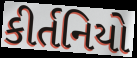
કીર્તનિયો